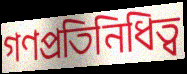
গণপ্রতিনিধিত্ব